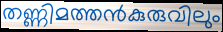
തണ്ണിമത്തൻകുരുവിലും